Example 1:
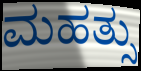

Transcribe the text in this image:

ಮಹತ್ಸು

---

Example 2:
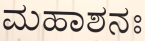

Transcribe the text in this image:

ಮಹಾಶನಃ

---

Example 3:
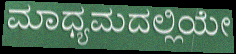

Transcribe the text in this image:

ಮಾಧ್ಯಮದಲ್ಲಿಯೇ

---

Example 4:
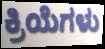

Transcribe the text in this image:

ಕ್ರಿಯೆಗಳು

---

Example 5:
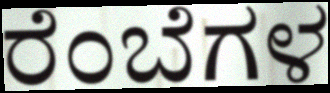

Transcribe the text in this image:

ರೆಂಬೆಗಳ